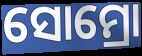
ସୋମ୍ରୋ